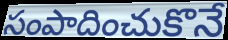
సంపాదించుకొనే